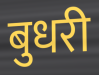
बुधरी